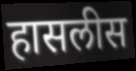
हासलीस